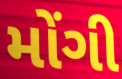
મોંગી